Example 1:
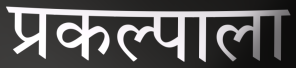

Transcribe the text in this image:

प्रकल्पाला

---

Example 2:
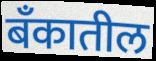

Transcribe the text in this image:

बँकातील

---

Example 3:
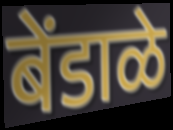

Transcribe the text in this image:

बेंडाळे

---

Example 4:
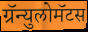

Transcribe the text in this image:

ग्रॅन्युलोमॅटस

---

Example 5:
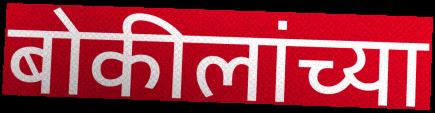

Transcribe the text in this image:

बोकीलांच्या